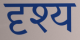
दृश्‍य